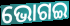
ଭୋଗଇ